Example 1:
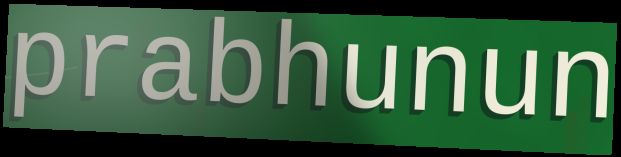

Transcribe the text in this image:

prabhunun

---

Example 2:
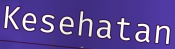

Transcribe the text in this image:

Kesehatan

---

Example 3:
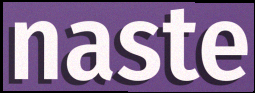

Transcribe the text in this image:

naste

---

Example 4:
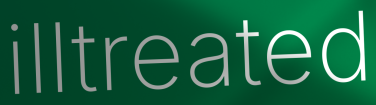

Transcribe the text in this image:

illtreated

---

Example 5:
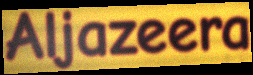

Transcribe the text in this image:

Aljazeera